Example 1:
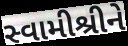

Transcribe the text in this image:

સ્વામીશ્રીને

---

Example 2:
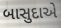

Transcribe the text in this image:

બાસુદાએ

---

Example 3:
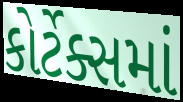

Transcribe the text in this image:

કોર્ટેક્સમાં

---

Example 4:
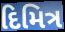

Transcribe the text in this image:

દિમિત્ર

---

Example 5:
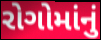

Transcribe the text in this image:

રોગોમાંનું